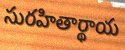
సురహితార్థాయ